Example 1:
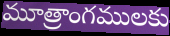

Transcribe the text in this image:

మూత్రాంగములకు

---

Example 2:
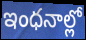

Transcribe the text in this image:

ఇంధనాల్లో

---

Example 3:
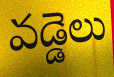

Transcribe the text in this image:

వడ్డెలు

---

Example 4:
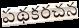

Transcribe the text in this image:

పథకరచన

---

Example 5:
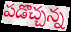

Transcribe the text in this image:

పడొచ్చన్న